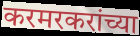
करमरकरांच्या